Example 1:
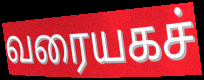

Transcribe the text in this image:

வரையகச்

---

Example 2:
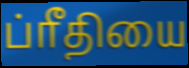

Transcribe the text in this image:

ப்ரீதியை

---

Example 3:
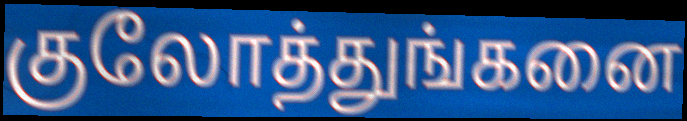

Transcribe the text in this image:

குலோத்துங்கனை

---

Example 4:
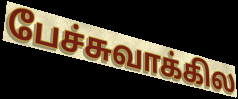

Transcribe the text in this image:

பேச்சுவாக்கில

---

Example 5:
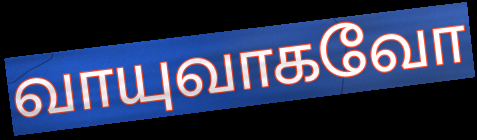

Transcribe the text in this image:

வாயுவாகவோ